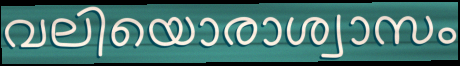
വലിയൊരാശ്വാസം